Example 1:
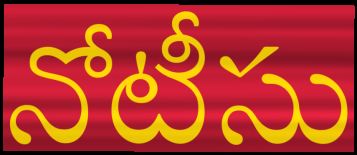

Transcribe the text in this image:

నోటీసు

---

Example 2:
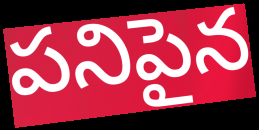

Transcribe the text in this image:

పనిపైన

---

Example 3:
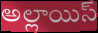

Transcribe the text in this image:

అల్లాయిస్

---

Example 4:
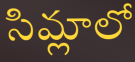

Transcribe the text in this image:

సిమ్లాలో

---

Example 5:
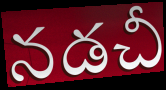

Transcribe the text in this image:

నడచీ